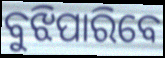
ବୁଝିପାରିବେ